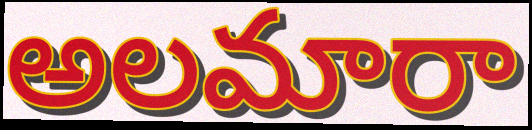
అలమారా